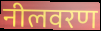
नीलवरण